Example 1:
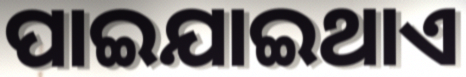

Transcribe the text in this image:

ପାଇଯାଇଥାଏ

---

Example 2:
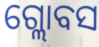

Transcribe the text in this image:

ଗ୍ଲୋବସ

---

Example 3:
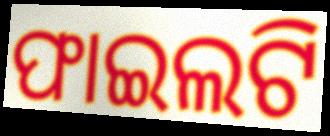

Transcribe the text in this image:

ଫାଇଲଟି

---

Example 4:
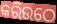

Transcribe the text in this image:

କରିଉଠେ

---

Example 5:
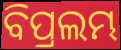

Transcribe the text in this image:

ବିପ୍ରଲମ୍ଭ